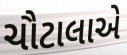
ચૌટાલાએ